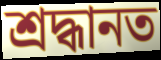
শ্রদ্ধানত